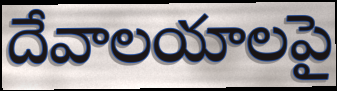
దేవాలయాలపై